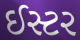
ઈસ્ટર